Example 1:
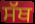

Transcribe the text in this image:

ਸੱਥ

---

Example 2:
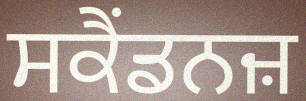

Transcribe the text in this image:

ਸਕੈਂਡਨਜ਼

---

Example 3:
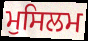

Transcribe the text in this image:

ਮੁਸਿਲਮ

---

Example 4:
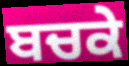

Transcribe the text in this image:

ਬਚਕੇ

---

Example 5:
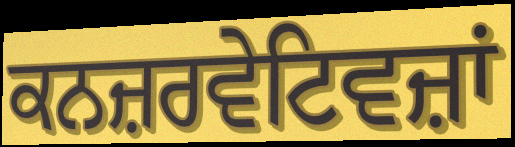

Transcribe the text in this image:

ਕਨਜ਼ਰਵੇਟਿਵਜ਼ਾਂ